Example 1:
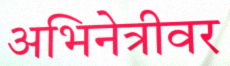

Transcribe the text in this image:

अभिनेत्रीवर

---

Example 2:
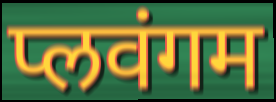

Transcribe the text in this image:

प्लवंगम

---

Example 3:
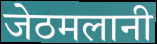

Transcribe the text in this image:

जेठमलानी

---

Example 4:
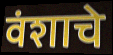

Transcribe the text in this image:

वंशाचे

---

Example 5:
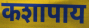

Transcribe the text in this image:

कशापाय